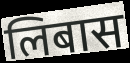
लिबास